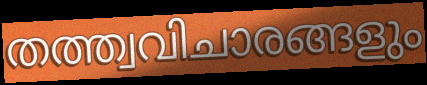
തത്ത്വവിചാരങ്ങളും